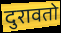
दुरावतो